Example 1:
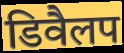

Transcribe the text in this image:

डिवैलप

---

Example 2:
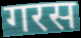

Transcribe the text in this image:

गरस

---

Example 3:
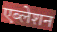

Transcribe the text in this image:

एब्लेशन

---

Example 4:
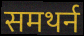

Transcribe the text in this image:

समथर्न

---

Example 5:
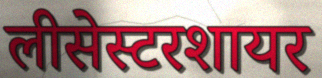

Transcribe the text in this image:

लीसेस्टरशायर